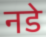
नडे